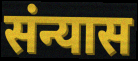
संन्यास